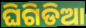
ଘିଗିଡିଆ